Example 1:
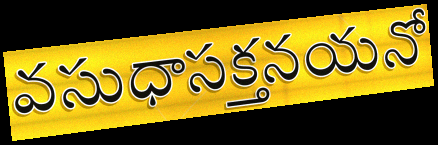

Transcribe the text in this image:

వసుధాసక్తనయనో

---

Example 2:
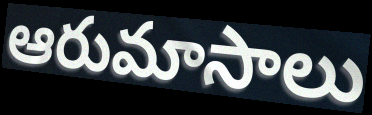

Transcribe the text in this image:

ఆరుమాసాలు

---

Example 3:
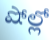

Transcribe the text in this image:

షోల్లో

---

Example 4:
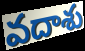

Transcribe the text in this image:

వదాశు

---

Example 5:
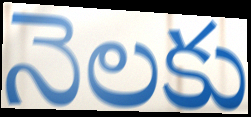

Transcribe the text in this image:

నెలకు